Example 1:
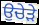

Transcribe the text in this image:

ਉਚੇੜੇ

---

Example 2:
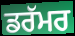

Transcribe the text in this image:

ਡਰੱਮਰ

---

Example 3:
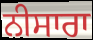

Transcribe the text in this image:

ਨੀਸਾਰਾ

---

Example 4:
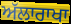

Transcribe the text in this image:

ਅੱਲਾਰਾਖਾ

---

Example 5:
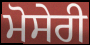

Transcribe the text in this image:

ਮੋਸੇਰੀ